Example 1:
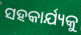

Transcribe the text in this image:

ସହକାର୍ଯ୍ୟକୁ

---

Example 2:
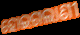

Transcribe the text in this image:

ହୋଇଗଲାଣୀ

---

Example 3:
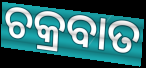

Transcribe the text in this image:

ଚକ୍ରବାତ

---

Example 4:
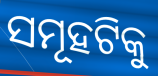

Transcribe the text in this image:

ସମୂହଟିକୁ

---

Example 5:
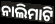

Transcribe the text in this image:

ନାଲିମାଟି